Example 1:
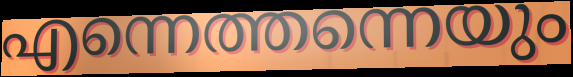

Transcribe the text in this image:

എന്നെത്തന്നെയും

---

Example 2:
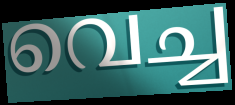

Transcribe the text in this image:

വെച്ച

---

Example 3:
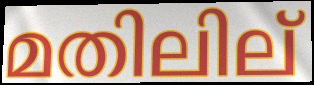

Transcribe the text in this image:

മതിലില്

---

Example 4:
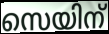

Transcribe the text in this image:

സെയിന്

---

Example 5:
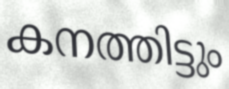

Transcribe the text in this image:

കനത്തിട്ടും